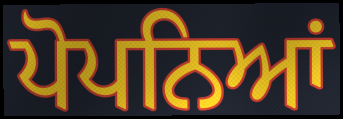
ਪੋਪਨਿਆਂ